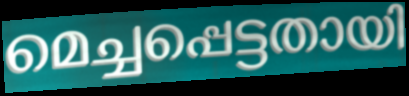
മെച്ചപ്പെട്ടതായി